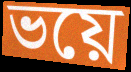
ভয়ে